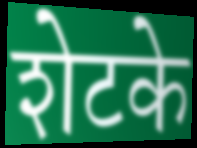
शेटके